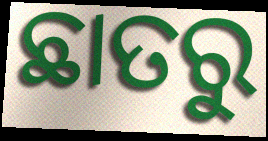
ଛାତରୁ